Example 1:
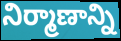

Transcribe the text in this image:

నిర్మాణాన్ని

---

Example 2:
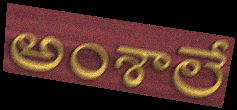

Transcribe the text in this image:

అంశాలే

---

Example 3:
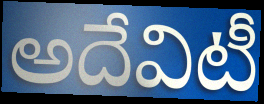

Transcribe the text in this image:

అదేవిటీ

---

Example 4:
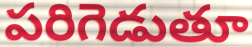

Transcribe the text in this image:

పరిగెడుతూ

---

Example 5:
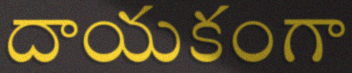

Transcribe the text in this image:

దాయకంగా